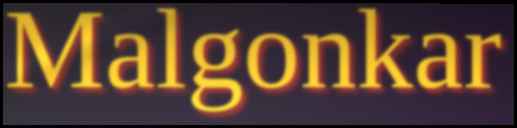
Malgonkar